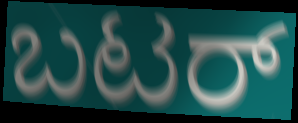
ಬಟರ್